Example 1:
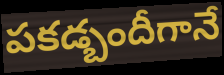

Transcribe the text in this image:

పకడ్బందీగానే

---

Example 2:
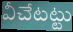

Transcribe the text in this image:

వీచేటట్టు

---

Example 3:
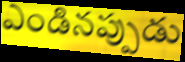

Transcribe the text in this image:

ఎండినప్పుడు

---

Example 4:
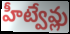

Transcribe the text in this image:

హీట్వేవ్లు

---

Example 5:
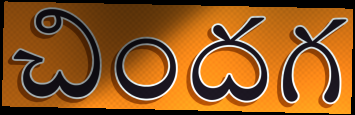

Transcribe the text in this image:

చిందగ